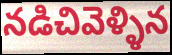
నడిచివెళ్ళిన